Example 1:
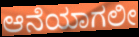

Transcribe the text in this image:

ಆನೆಯಾಗಲೀ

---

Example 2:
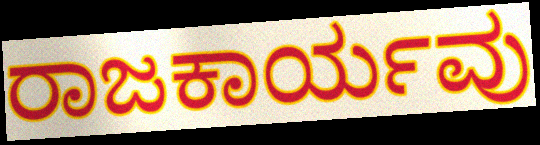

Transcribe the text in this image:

ರಾಜಕಾರ್ಯವು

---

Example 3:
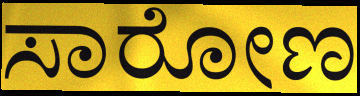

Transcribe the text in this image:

ಸಾರೋಣ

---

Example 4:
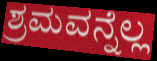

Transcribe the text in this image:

ಶ್ರಮವನ್ನೆಲ್ಲ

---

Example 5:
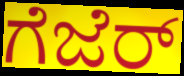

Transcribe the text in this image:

ಗೆಜೆರ್